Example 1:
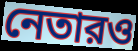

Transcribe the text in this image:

নেতারও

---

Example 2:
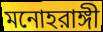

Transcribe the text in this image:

মনোহরাঙ্গী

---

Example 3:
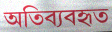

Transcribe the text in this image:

অতিব্যবহৃত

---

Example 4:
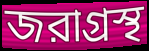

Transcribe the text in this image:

জরাগ্রস্থ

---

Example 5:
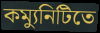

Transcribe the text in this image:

কম্যুনিটিতে